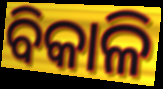
ବିକାଳି